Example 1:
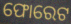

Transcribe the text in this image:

ଫୋରେଟ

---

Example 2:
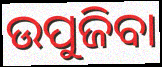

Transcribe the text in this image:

ଉପୁଜିବା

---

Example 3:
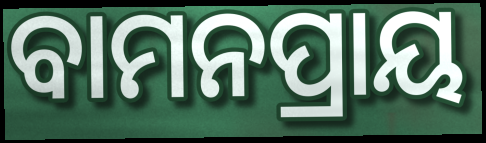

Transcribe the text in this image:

ବାମନପ୍ରାୟ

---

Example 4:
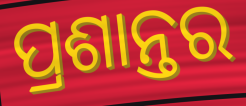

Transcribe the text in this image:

ପ୍ରଶାନ୍ତର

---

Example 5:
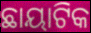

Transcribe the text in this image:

ଛାୟାଟିକ